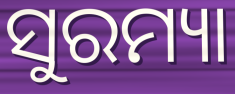
ସୁରମ୍ୟା